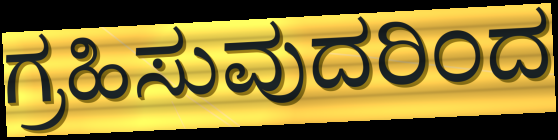
ಗ್ರಹಿಸುವುದರಿಂದ